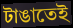
টাঙাতেই